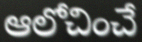
ఆలోచించే